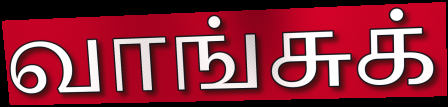
வாங்சுக்